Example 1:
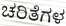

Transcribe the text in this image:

ಚರಿತೆಗಳ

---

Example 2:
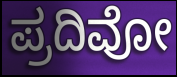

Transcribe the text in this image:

ಪ್ರದಿವೋ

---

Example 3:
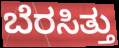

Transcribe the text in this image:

ಬೆರಸಿತ್ತು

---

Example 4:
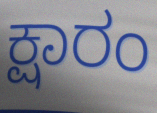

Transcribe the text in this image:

ಕ್ಷಾರಂ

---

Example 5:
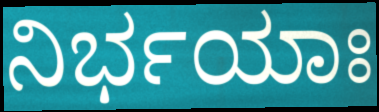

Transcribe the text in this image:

ನಿರ್ಭಯಾಃ